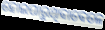
ହୋଇପାରୁଥିବାବେଳେ